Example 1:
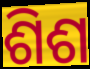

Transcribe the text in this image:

ଶିଶ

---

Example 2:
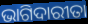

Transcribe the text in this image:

ଭାଗିଦାରୀତା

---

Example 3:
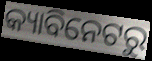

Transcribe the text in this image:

କ୍ୟାବିନେଟରୁ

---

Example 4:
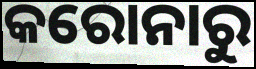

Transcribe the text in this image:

କରୋନାରୁ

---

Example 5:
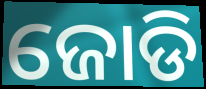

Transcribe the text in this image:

ଜୋଡି